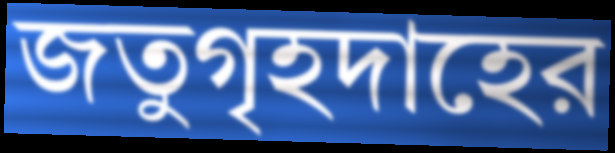
জতুগৃহদাহের